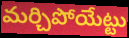
మర్చిపోయేట్టు